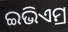
ଇଭିଏମ୍ର